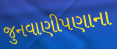
જુનવાણીપણાના